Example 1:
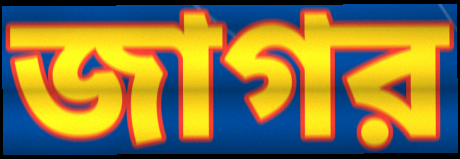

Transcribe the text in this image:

জাগর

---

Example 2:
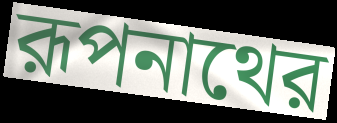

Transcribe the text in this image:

রূপনাথের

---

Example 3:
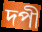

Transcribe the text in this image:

দপী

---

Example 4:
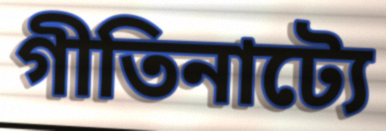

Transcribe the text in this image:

গীতিনাট্যে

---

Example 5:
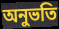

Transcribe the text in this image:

অনুভতি